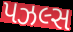
પઝલ્સ